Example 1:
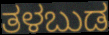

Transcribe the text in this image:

ತಳಬುಡ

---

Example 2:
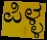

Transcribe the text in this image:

ಪಿಳ್ಳ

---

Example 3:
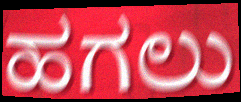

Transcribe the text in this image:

ಹಗಲು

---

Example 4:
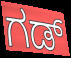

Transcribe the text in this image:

ಗಡ್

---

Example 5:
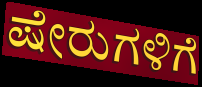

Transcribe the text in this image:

ಷೇರುಗಳಿಗೆ